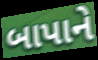
બાપાને